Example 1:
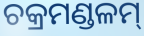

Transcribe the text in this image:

ଚକ୍ରମଣ୍ଡଳମ୍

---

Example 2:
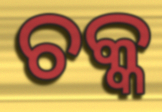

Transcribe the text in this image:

ଚକ୍କ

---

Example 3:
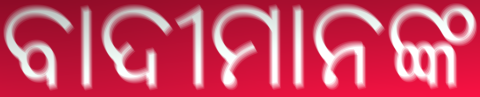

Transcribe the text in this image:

ବାଦୀମାନଙ୍କ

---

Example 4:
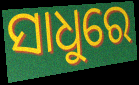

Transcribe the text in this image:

ସାଧୁରେ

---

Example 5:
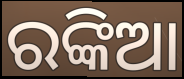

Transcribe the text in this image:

ରଙ୍କିଆ